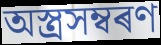
অস্ত্ৰসম্বৰণ